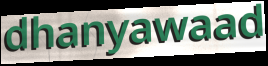
dhanyawaad